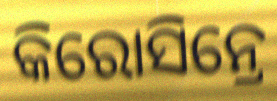
କିରୋସିନ୍ରେ